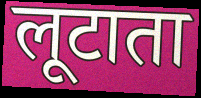
लूटाता